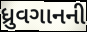
ધ્રુવગાનની